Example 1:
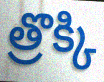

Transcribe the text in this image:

త్రొక్కి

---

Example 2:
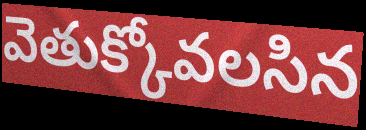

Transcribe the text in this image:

వెతుక్కోవలసిన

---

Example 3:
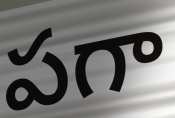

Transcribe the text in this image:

పగా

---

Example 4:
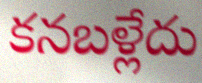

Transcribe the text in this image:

కనబళ్లేదు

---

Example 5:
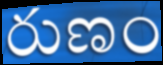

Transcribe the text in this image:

రుణం